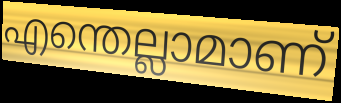
എന്തെല്ലാമാണ്